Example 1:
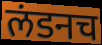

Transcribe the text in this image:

लंडनच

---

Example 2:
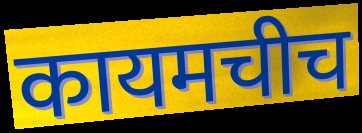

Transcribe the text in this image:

कायमचीच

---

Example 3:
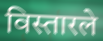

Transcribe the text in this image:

विस्तारले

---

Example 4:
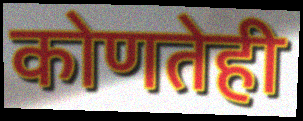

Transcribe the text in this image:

कोणतेही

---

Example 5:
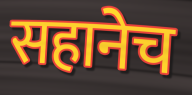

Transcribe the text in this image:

सहानेच